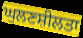
ਘੁਲਣਸ਼ੀਲਤਾ